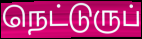
நெட்டுருப்